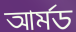
আৰ্মড